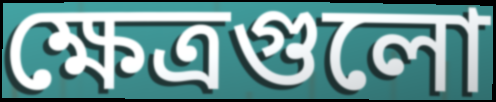
ক্ষেত্রগুলো